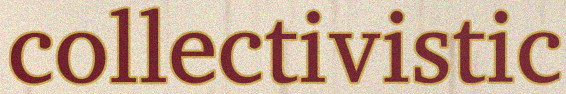
collectivistic